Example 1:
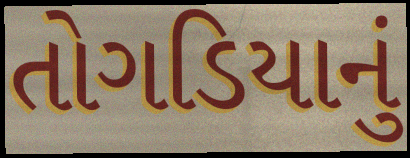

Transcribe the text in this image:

તોગડિયાનું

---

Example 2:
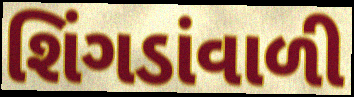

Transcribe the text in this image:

શિંગડાંવાળી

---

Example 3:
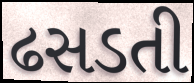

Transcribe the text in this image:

ઢસડતી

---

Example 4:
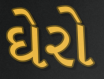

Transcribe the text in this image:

ઘેરો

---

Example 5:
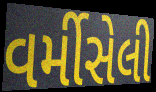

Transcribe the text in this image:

વર્મીસેલી